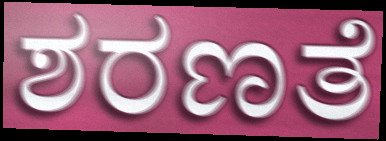
ಶರಣತೆ